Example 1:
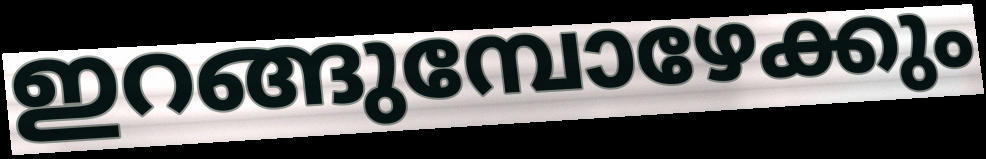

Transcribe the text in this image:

ഇറങ്ങുമ്പോഴേക്കും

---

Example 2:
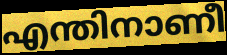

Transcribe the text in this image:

എന്തിനാണീ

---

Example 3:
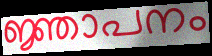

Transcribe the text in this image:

ജ്ഞാപനം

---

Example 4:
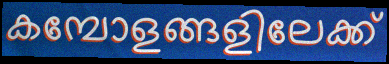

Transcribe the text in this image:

കമ്പോളങ്ങളിലേക്ക്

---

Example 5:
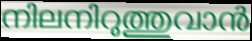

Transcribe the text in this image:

നിലനിറുത്തുവാൻ